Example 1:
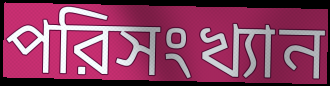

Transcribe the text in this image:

পরিসংখ্যান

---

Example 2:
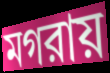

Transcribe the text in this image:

মগরায়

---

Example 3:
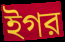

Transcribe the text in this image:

ইগর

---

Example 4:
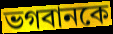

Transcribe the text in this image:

ভগবানকে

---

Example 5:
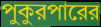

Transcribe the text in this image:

পুকুরপারের